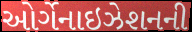
ઓર્ગેનાઇઝેશનની